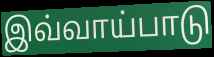
இவ்வாய்பாடு